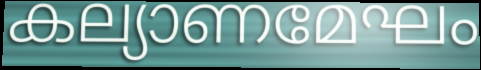
കല്യാണമേഘം